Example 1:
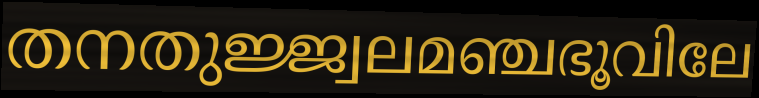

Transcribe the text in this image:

തനതുജ്ജ്വലമഞ്ചഭൂവിലേ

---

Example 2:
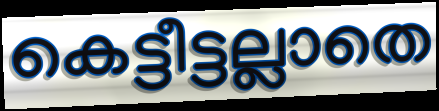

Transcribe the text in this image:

കെട്ടീട്ടല്ലാതെ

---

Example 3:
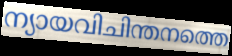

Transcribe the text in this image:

ന്യായവിചിന്തനത്തെ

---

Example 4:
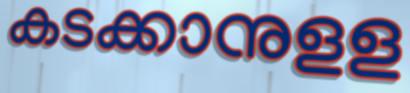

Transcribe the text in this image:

കടക്കാനുളള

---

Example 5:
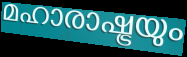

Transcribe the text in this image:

മഹാരാഷ്ട്രയും